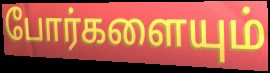
போர்களையும்